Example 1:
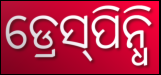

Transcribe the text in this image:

ଡ୍ରେସ୍‌ପିନ୍ଧି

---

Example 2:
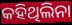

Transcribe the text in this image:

କହିଥିଲିନା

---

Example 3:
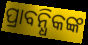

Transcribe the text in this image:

ପ୍ରାବନ୍ଧିକଙ୍କ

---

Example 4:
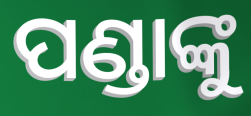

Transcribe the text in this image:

ପଣ୍ଡାଙ୍କୁ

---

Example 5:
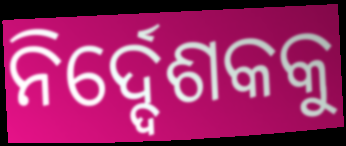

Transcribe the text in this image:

ନିର୍ଦ୍ଦେଶକକୁ